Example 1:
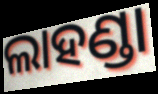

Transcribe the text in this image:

ଲାହଣ୍ଡା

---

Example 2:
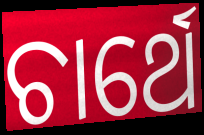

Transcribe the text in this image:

ଚାର୍ଥେ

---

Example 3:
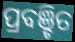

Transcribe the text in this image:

ପ୍ରବଞ୍ଚିତ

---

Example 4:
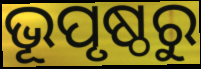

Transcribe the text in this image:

ଭୂପୃଷ୍ଠରୁ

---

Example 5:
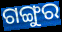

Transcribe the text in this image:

ଗଙ୍ଗୁର